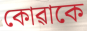
কোৱাকে